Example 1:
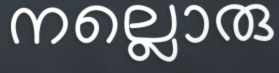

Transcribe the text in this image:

നല്ലൊരു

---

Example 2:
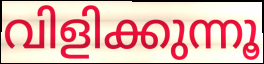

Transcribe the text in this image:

വിളിക്കുന്നൂ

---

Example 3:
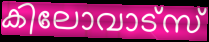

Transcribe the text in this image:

കിലോവാട്സ്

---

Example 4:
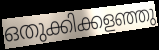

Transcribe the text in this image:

ഒതുക്കിക്കളഞ്ഞു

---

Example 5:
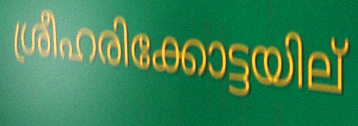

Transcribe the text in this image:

ശ്രീഹരിക്കോട്ടയില്